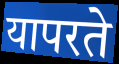
यापरते